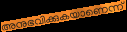
അനുഭവിക്കുകയാണെന്ന്